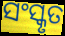
ସଂସ୍କୃତ